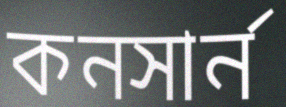
কনসার্ন